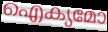
ഐക്യമോ